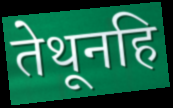
तेथूनहि